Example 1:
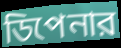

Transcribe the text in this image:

ডিপেনার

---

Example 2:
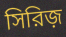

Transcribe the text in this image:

সিরিজ়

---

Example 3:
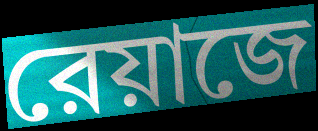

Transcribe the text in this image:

রেয়াজে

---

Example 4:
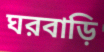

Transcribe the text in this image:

ঘরবাড়ি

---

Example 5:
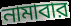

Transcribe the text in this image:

নামাবার